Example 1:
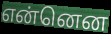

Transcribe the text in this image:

என்னென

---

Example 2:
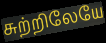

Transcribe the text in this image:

சுற்றிலேயே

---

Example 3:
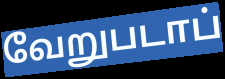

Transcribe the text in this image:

வேறுபடாப்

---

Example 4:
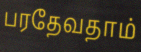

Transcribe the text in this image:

பரதேவதாம்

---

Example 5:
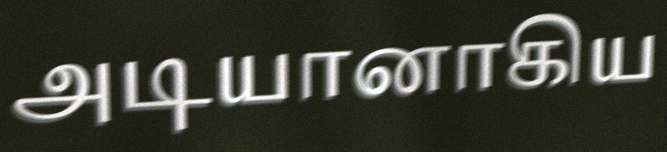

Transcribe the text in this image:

அடியானாகிய